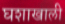
घशाखाली